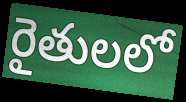
రైతులలో